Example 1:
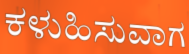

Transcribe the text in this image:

ಕಳುಹಿಸುವಾಗ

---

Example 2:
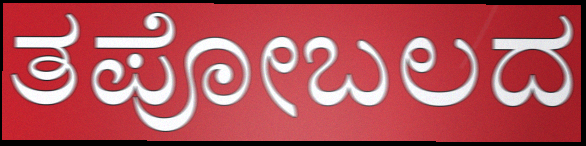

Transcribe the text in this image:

ತಪೋಬಲದ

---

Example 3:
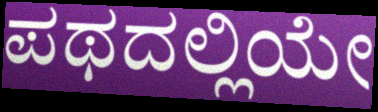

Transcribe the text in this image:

ಪಥದಲ್ಲಿಯೇ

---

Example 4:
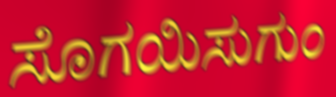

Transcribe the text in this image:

ಸೊಗಯಿಸುಗುಂ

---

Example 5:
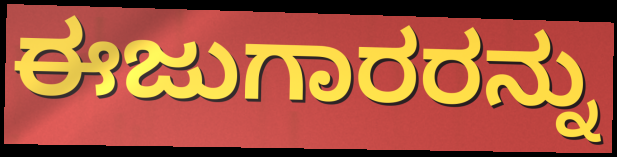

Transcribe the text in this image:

ಈಜುಗಾರರನ್ನು